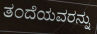
ತಂದೆಯವರನ್ನು